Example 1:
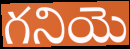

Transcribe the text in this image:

గనియె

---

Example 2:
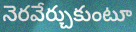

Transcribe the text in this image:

నెరవేర్చుకుంటూ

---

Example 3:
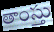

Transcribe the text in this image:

తాంస్తు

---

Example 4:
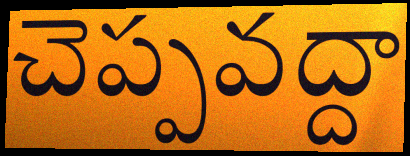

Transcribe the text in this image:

చెప్పవద్దా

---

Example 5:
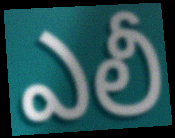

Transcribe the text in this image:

ఎలీ